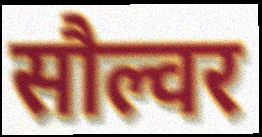
सौल्वर